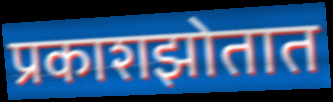
प्रकाशझोतात